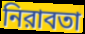
নিরাবতা